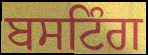
ਬਸਟਿੰਗ